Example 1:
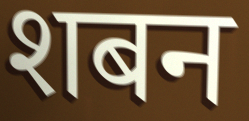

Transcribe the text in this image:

शबन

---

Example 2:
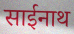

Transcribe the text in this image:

साईनाथ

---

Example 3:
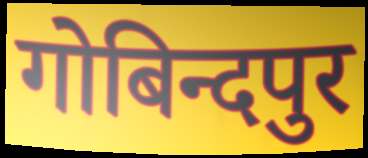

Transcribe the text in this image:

गोबिन्दपुर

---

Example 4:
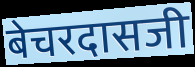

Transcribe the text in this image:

बेचरदासजी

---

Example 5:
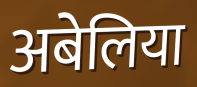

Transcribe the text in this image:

अबेलिया